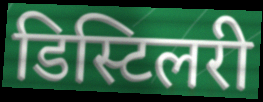
डिस्टिलरी